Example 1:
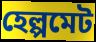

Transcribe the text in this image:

হেল্পমেট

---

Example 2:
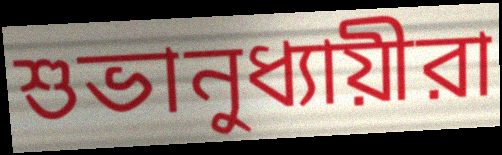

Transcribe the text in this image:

শুভানুধ্যায়ীরা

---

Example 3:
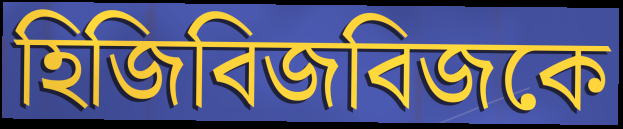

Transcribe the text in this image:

হিজিবিজবিজকে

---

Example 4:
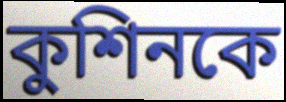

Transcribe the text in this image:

কুশিনকে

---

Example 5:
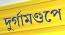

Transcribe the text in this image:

দুর্গামণ্ডপে